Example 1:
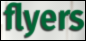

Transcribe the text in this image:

flyers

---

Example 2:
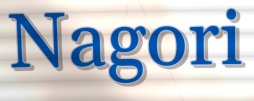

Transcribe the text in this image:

Nagori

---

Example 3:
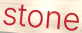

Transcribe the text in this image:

stone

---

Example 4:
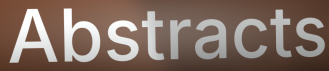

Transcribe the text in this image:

Abstracts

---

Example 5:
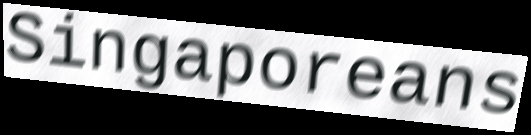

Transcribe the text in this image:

Singaporeans